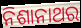
ନିଶାନାଥର